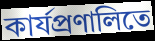
কার্যপ্রণালিতে